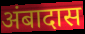
अंबादास